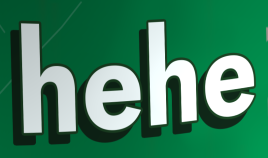
hehe